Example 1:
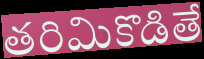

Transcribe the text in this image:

తరిమికొడితే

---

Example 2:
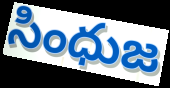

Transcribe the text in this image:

సింధుజ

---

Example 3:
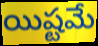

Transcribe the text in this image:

యిష్టమే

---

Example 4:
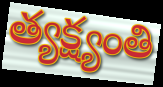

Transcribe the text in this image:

త్యక్ష్యంతి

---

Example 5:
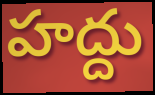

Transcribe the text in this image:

హద్దు